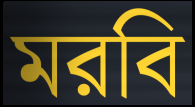
মরবি